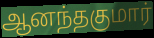
ஆனந்தகுமார்